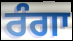
ਰੰਗਾ